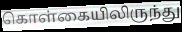
கொள்கையிலிருந்து